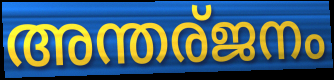
അന്തര്ജനം